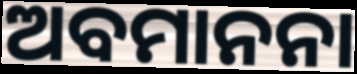
ଅବମାନନା